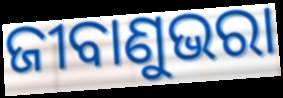
ଜୀବାଣୁଭରା